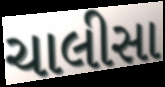
ચાલીસા